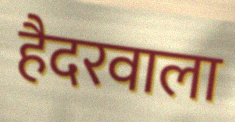
हैदरवाला